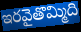
ఇరవైతొమ్మిది